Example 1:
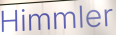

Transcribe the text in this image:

Himmler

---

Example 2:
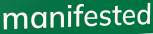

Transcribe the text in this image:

manifested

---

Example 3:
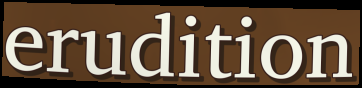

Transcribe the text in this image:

erudition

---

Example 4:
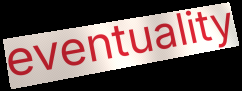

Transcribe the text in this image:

eventuality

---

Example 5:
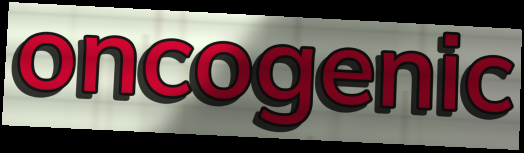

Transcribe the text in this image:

oncogenic